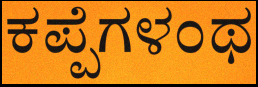
ಕಪ್ಪೆಗಳಂಥ